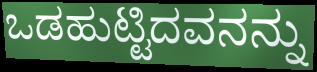
ಒಡಹುಟ್ಟಿದವನನ್ನು